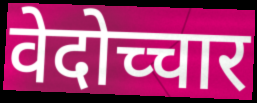
वेदोच्चार